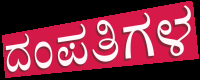
ದಂಪತಿಗಳ